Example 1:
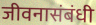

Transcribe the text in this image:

जीवनासंबंधी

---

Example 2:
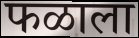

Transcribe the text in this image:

फळाला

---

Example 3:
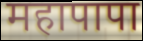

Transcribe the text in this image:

महापापा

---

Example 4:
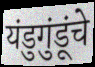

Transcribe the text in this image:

यंडुगुंडूंचे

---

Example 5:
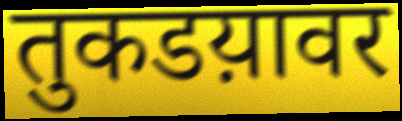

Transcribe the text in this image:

तुकडय़ावर